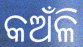
କଅଁଳି